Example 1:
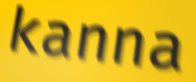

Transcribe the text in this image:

kanna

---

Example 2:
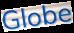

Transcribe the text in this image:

Globe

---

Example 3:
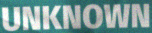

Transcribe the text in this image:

UNKNOWN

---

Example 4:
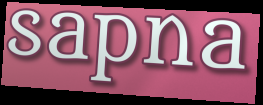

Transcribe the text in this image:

sapna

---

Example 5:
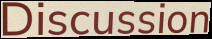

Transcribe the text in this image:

Discussion